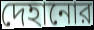
দেহানোর